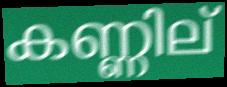
കണ്ണില്